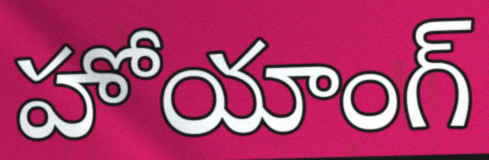
హోయాంగ్